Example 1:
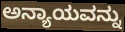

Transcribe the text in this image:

ಅನ್ಯಾಯವನ್ನು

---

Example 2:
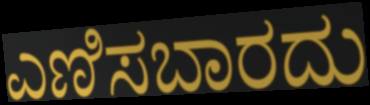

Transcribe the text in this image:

ಎಣಿಸಬಾರದು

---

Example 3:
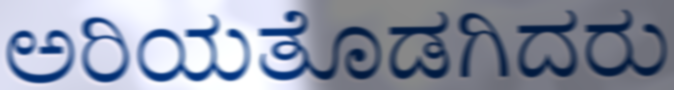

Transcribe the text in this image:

ಅರಿಯತೊಡಗಿದರು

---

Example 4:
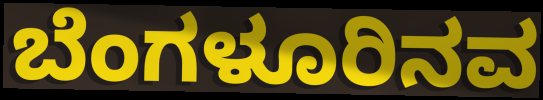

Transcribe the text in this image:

ಬೆಂಗಳೂರಿನವ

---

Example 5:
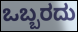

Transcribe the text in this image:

ಒಬ್ಬರದು